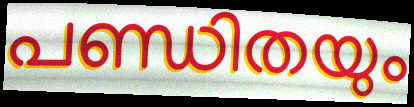
പണ്ഡിതയും